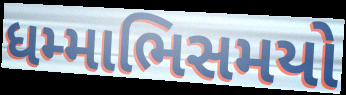
ધમ્માભિસમયો